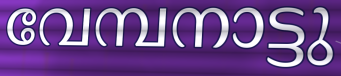
വേമ്പനാട്ടു